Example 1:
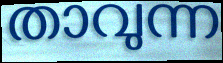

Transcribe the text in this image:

താവുന്ന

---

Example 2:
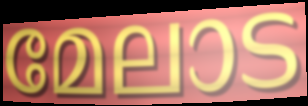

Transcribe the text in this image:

മേലാട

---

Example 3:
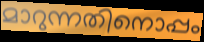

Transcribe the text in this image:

മാറുന്നതിനൊപ്പം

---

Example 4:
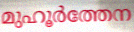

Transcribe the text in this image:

മുഹൂർത്തേന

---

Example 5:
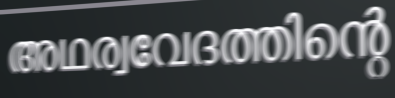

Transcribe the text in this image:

അഥര്വവേദത്തിന്റെ